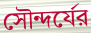
সৌন্দর্যের